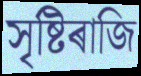
সৃষ্টিৰাজি